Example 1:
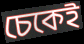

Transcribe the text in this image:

চেকেই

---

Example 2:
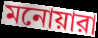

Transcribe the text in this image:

মনোয়ারা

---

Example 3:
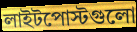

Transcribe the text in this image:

লাইটপোস্টগুলো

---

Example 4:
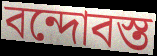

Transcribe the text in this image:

বন্দোবস্ত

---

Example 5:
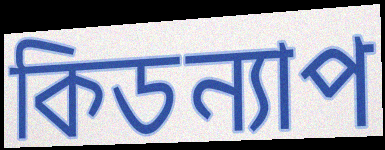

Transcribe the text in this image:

কিডন্যাপ